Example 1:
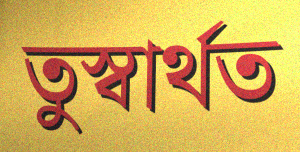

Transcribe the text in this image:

তুস্বাৰ্থত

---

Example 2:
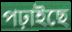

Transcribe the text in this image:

পঢ়াইছে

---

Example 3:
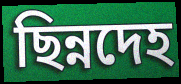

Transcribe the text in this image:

ছিন্নদেহ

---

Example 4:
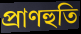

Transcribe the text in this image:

প্ৰাণহুতি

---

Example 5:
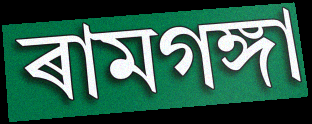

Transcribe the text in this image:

ৰামগঙ্গা